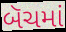
બૅચમાં